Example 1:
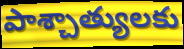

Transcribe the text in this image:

పాశ్చాత్యులకు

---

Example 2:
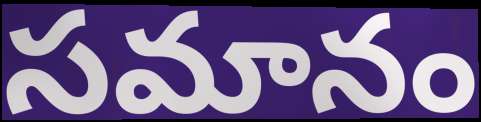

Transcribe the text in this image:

సమానం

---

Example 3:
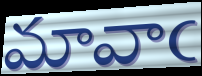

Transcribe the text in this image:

మావాఁ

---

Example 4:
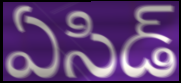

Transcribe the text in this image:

ఏసిడ్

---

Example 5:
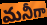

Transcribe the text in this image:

మనీగా